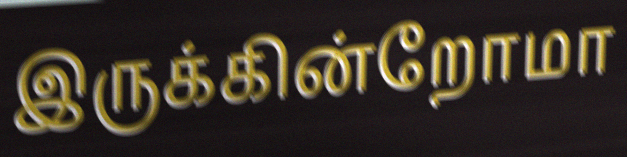
இருக்கின்றோமா